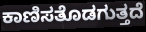
ಕಾಣಿಸತೊಡಗುತ್ತದೆ